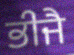
ਭੀਜੈ